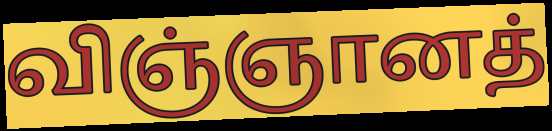
விஞ்ஞானத்